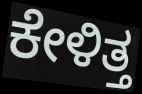
ಕೇಳಿತ್ತ